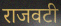
राजवटी